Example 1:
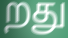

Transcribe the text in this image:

றது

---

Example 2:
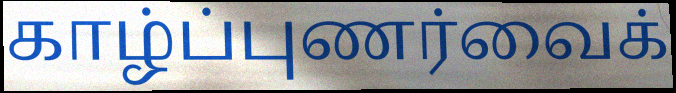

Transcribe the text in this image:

காழ்ப்புணர்வைக்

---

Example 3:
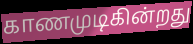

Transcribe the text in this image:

காணமுடிகின்றது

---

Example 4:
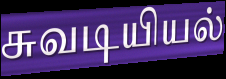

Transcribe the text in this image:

சுவடியியல்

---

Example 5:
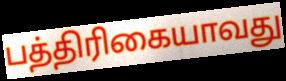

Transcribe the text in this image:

பத்திரிகையாவது